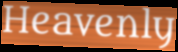
Heavenly